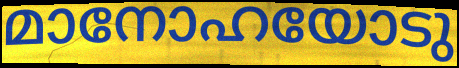
മാനോഹയോടു